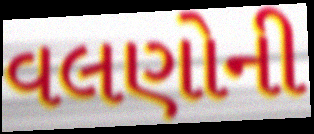
વલણોની